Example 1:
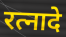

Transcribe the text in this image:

रत्नादे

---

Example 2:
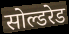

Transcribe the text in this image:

सोल्डरेड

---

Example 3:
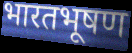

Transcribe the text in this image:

भारतभूषण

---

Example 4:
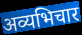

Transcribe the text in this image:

अव्यभिचार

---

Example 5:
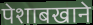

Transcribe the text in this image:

पेशाबखाने